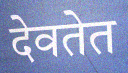
देवतेत